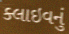
ક્લાઇવનું